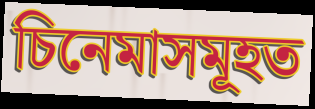
চিনেমাসমূহত